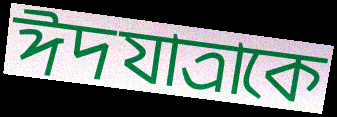
ঈদযাত্রাকে